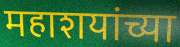
महाशयांच्या